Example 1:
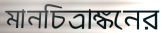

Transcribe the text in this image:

মানচিত্রাঙ্কনের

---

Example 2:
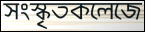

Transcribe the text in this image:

সংস্কৃতকলেজে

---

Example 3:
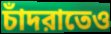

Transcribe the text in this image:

চাঁদরাতেও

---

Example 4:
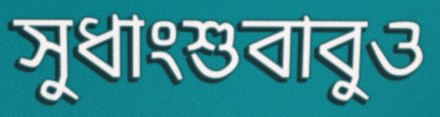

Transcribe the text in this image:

সুধাংশুবাবুও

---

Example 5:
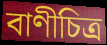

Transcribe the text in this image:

বাণীচিত্র